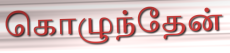
கொழுந்தேன்